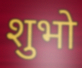
शुभो